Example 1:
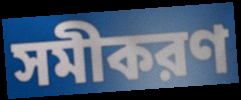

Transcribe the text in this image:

সমীকরণ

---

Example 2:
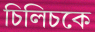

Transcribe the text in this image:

চিলিচকে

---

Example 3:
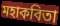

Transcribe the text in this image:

মহাকবিতা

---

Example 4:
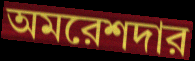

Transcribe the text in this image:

অমরেশদার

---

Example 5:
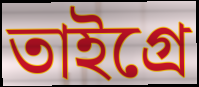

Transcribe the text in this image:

তাইগ্রে